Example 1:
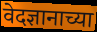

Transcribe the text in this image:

वेदज्ञानाच्या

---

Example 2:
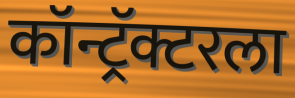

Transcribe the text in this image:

कॉन्ट्रॅक्टरला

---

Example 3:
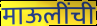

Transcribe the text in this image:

माऊलींची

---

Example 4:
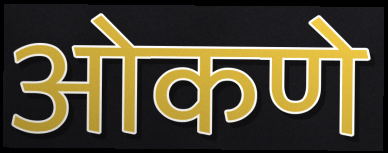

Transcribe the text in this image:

ओकणे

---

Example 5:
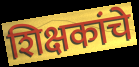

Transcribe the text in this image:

शिक्षकांचे